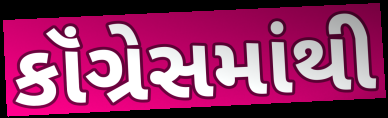
કૉંગ્રેસમાંથી